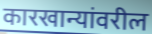
कारखान्यांवरील